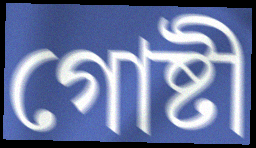
গোষ্টী